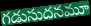
గడుసుదనమూ